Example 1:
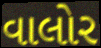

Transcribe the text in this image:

વાલોર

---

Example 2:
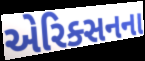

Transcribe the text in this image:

એરિક્સનના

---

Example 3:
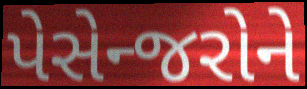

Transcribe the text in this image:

પેસેન્જરોને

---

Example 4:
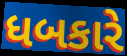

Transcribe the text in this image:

ધબકારે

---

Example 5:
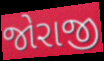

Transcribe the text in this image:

જોરાજી